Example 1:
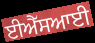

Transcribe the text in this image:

ਈਐੱਸਆਈ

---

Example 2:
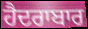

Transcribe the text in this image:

ਹੈਦਰਾਬਾਰ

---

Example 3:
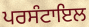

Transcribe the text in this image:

ਪਰਸੰਟਾਇਲ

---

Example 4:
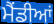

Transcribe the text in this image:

ਮੈਂਡੀਆਂ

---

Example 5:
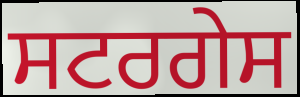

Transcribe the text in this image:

ਸਟਰਗੇਸ